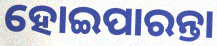
ହୋଇପାରନ୍ତା